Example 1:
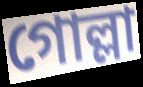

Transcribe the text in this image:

গোল্লা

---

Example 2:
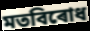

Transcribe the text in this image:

মতবিৰোধ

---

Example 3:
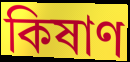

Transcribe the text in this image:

কিষাণ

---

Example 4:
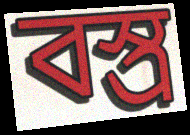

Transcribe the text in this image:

বস্ত্ৰ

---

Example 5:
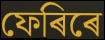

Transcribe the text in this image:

ফেৰিৰে